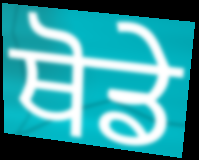
ਥੋਡੇ